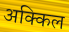
अक्किल